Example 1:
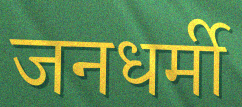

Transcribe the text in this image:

जनधर्मी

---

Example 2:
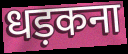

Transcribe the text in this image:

धड़कना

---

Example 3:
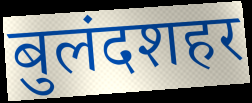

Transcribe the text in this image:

बुलंदशहर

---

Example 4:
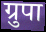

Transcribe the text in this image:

ग्रुपा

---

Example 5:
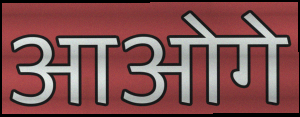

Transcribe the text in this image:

आओगे